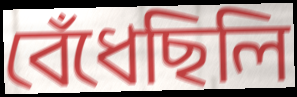
বেঁধেছিলি